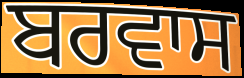
ਬਰਵਾਸ